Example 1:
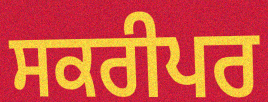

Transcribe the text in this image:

ਸਕਰੀਪਰ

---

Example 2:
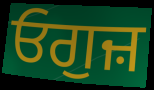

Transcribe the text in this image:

ਓਗੁਜ਼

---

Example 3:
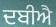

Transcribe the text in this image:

ਦਬੀਐ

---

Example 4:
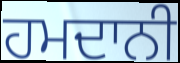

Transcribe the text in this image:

ਹਮਦਾਨੀ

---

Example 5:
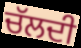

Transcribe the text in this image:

ਚੱਲਦੀ